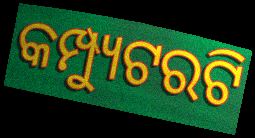
କମ୍ପ୍ୟୁଟରଟି